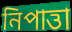
নিপাত্তা